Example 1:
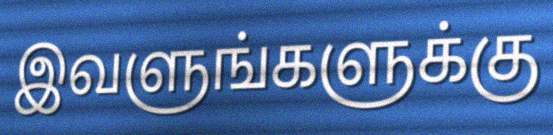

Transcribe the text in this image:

இவளுங்களுக்கு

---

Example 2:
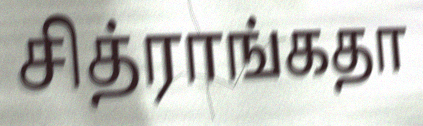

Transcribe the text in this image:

சித்ராங்கதா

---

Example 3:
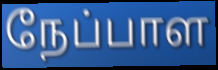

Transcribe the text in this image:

நேப்பாள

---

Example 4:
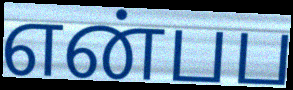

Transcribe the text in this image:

என்பப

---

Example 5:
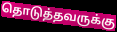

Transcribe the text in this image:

தொடுத்தவருக்கு